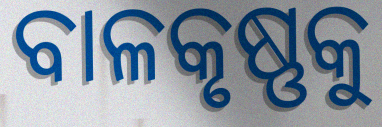
ବାଳକୃଷ୍ଣକୁ